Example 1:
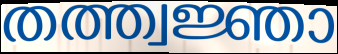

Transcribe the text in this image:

തത്ത്വജ്ഞാ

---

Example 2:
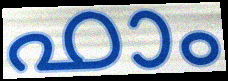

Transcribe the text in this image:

ഫാം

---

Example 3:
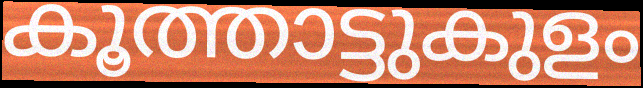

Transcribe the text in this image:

കൂത്താട്ടുകുളം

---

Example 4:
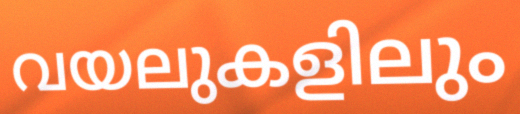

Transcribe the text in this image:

വയലുകളിലും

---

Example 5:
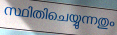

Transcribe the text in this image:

സ്ഥിതിചെയ്യുന്നതും